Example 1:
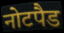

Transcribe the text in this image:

नोटपैड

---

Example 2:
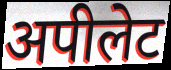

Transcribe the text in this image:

अपीलेट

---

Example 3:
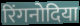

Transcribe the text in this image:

रिंगनोदिया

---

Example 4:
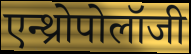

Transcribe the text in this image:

एन्थ्रोपोलॉजी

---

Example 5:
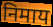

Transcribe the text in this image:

निमाय